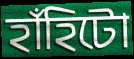
হাঁহিটো